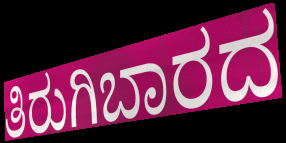
ತಿರುಗಿಬಾರದ